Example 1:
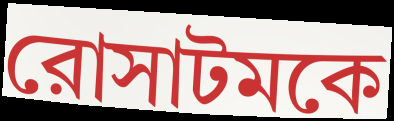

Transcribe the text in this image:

রোসাটমকে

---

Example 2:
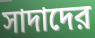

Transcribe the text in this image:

সাদাদের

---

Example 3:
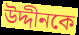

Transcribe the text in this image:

উদ্দীনকে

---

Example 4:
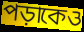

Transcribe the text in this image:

পড়াকেও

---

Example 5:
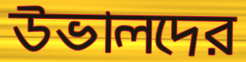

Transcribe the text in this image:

উভালদের